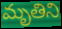
మృతిని